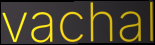
vachal